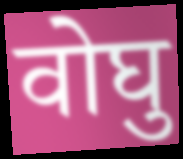
वोघु